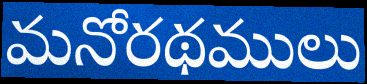
మనోరథములు